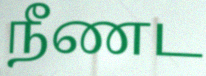
நீணட